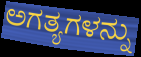
ಅಗತ್ಯಗಳನ್ನು